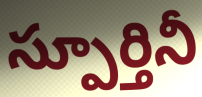
స్పూర్తినీ